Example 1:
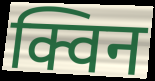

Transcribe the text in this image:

क्विन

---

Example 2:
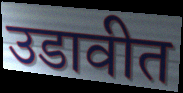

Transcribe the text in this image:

उडावीत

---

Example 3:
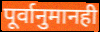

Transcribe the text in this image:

पूर्वानुमानही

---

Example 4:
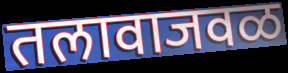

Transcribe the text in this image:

तलावाजवळ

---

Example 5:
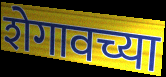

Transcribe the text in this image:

शेगावच्या